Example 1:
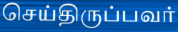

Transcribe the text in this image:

செய்திருப்பவர்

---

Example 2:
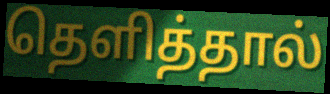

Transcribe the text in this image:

தெளித்தால்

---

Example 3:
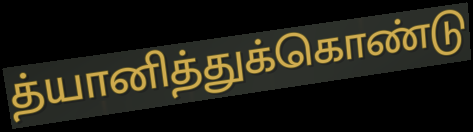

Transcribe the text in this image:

த்யானித்துக்கொண்டு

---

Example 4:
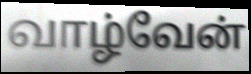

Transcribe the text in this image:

வாழ்வேன்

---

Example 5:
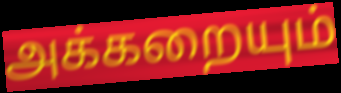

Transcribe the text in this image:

அக்கறையும்